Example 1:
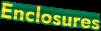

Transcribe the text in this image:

Enclosures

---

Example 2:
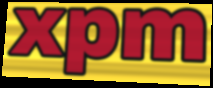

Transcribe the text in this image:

xpm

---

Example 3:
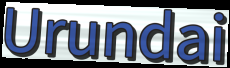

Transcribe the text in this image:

Urundai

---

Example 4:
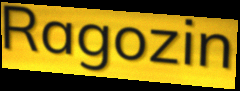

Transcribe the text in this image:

Ragozin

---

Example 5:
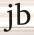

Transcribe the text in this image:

jb